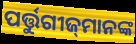
ପର୍ତ୍ତୁଗୀଜ୍‌ମାନଙ୍କ